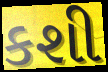
કશી